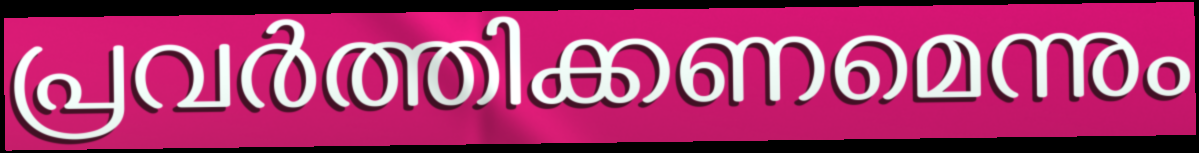
പ്രവർത്തിക്കണമെന്നും